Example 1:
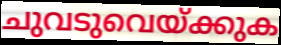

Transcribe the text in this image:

ചുവടുവെയ്ക്കുക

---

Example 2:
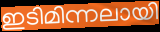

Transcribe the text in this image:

ഇടിമിന്നലായി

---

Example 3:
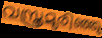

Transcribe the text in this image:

വസ്ത്രമുരിഞ്ഞു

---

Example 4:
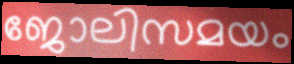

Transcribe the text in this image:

ജോലിസമയം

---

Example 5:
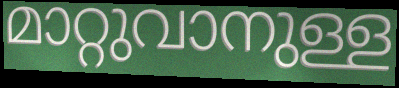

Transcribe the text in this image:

മാറ്റുവാനുള്ള